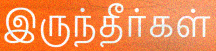
இருந்தீர்கள்